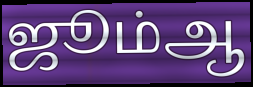
ஜூம்ஆ